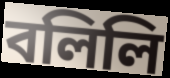
বলিলি